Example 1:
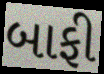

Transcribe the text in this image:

બાફી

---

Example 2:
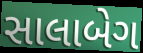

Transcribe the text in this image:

સાલાબેગ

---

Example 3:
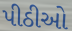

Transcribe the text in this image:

પીઠીઓ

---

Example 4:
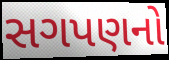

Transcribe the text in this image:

સગપણનો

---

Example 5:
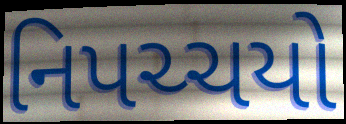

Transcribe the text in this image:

નિપચ્ચયો